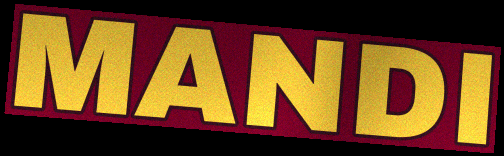
MANDI